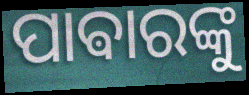
ପାଵାରଙ୍କୁ